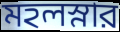
মহলস্নার